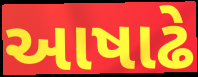
આષાઢે